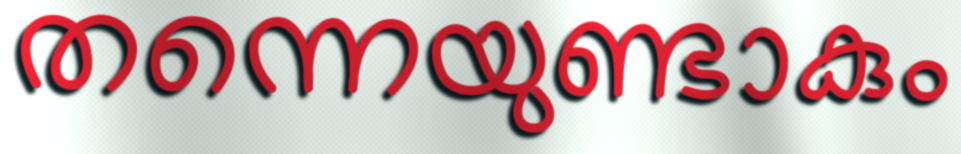
തന്നെയുണ്ടാകും